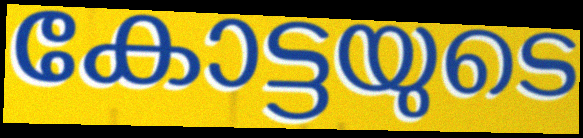
കോട്ടയുടെ